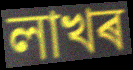
লাখৰ